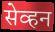
सेव्हन